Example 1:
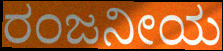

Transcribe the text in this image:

ರಂಜನೀಯ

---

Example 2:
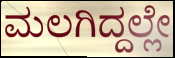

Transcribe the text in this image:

ಮಲಗಿದ್ದಲ್ಲೇ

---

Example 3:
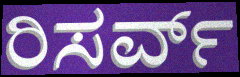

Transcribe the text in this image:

ರಿಸರ್ವ್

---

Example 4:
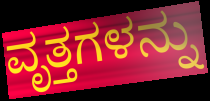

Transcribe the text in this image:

ವೃತ್ತಗಳನ್ನು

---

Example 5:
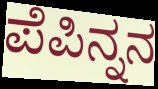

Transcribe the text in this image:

ಪೆಪಿನ್ನನ